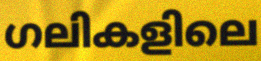
ഗലികളിലെ